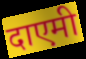
दाएमी